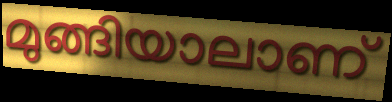
മുങ്ങിയാലാണ്